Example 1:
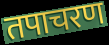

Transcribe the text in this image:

तपाचरण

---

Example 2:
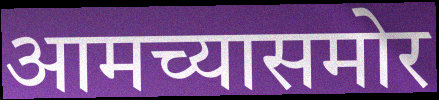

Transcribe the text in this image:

आमच्यासमोर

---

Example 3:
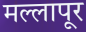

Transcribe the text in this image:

मल्लापूर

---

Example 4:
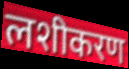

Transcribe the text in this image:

लशीकरण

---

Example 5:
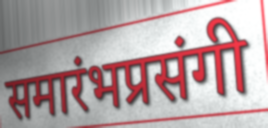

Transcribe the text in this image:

समारंभप्रसंगी